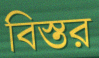
বিস্তর